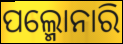
ପଲ୍ମୋନାରି